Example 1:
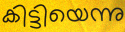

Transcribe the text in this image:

കിട്ടിയെന്നു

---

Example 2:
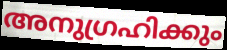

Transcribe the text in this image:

അനുഗ്രഹിക്കും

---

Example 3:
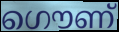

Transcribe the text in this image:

ഗൌണ്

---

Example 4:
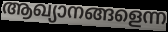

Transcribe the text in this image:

ആഖ്യാനങ്ങളെന്ന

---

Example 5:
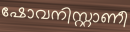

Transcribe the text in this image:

ഷോവനിസ്റ്റാണീ